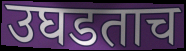
उघडताच